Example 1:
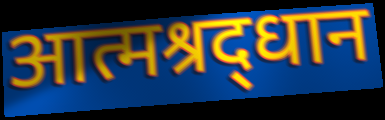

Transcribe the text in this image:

आत्मश्रद्धान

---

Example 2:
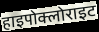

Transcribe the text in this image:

हाइपोक्लोराइट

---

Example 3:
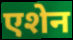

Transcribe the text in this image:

एशेन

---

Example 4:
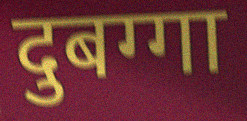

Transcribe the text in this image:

दुबग्गा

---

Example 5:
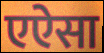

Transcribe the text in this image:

एऐसा